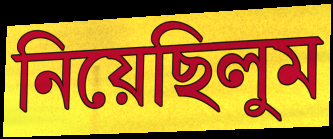
নিয়েছিলুম